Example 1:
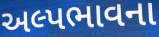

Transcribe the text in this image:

અલ્પભાવના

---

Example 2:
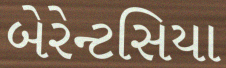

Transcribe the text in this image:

બેરેન્ટસિયા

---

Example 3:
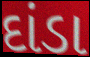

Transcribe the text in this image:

દાંડા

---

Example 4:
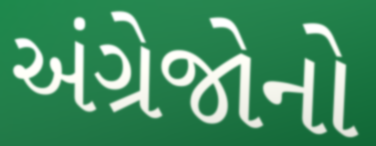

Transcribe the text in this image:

અંગ્રેજોનો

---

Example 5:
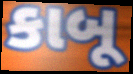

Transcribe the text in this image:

કાબૂ